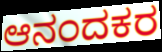
ಆನಂದಕರ